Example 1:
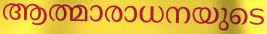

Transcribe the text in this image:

ആത്മാരാധനയുടെ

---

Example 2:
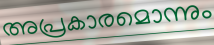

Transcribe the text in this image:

അപ്രകാരമൊന്നും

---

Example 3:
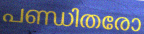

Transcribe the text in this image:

പണ്ഡിതരോ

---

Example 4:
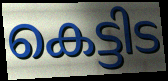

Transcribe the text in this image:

കെട്ടിട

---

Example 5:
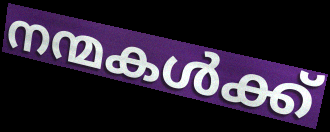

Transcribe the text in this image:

നന്മകൾക്ക്